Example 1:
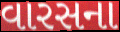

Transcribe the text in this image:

વારસના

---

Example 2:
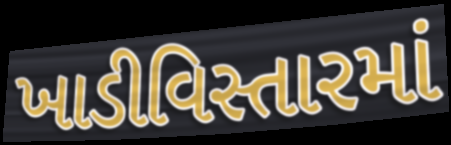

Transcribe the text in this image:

ખાડીવિસ્તારમાં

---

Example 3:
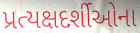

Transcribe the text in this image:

પ્રત્યક્ષદર્શીઓના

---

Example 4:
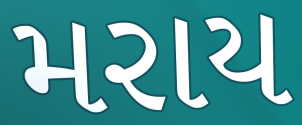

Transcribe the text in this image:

મરાય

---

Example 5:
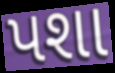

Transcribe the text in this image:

પશા